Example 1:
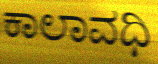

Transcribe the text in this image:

ಕಾಲಾವಧಿ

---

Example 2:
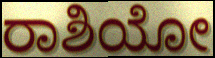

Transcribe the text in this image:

ರಾಶಿಯೋ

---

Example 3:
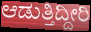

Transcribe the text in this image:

ಆಡುತ್ತಿದ್ದೀರಿ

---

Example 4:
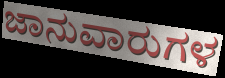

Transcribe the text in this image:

ಜಾನುವಾರುಗಳ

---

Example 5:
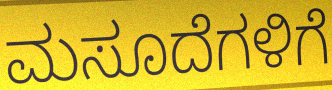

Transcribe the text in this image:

ಮಸೂದೆಗಳಿಗೆ